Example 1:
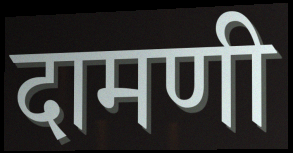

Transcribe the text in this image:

दामणी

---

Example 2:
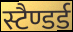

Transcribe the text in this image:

स्टैण्डर्ड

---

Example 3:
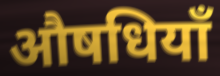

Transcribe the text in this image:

औषधियाँ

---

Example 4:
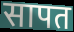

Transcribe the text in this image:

सापत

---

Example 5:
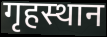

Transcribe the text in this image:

गृहस्थान